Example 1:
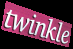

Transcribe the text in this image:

twinkle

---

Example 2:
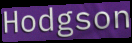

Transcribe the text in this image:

Hodgson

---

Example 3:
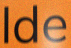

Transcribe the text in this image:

lde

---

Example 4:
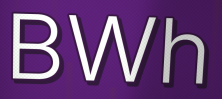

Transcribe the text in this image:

BWh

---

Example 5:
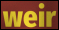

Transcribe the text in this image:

weir